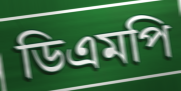
ডিএমপি